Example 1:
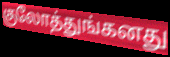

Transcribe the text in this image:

குலோத்துங்கனது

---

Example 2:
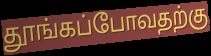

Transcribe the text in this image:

தூங்கப்போவதற்கு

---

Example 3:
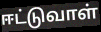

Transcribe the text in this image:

ஈட்டுவாள்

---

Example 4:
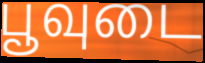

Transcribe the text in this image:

பூவுடை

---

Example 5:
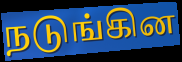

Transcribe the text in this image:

நடுங்கின